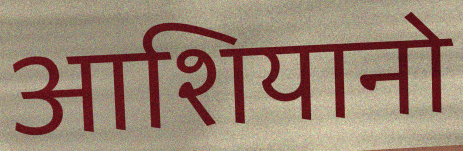
आशियानो